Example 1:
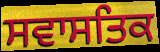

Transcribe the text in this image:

ਸਵਾਸਤਿਕ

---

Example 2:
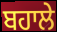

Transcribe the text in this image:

ਬਹਾਲੇ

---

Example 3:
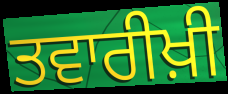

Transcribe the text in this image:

ਤਵਾਰੀਖ਼ੀ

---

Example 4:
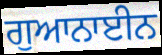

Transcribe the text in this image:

ਗੁਆਨਾਈਨ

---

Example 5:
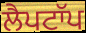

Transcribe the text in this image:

ਲੈਪਟਾੱਪ